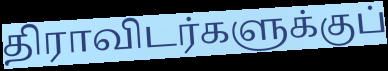
திராவிடர்களுக்குப்